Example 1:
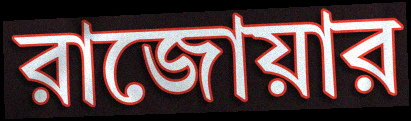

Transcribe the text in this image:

রাজোয়ার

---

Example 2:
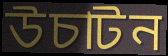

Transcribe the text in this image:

উচাটন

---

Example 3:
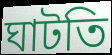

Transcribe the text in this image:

ঘাটতি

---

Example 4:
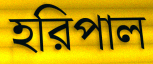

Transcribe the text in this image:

হরিপাল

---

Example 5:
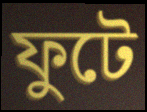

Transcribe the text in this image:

ফুটে